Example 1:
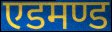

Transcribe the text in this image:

एडमण्ड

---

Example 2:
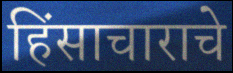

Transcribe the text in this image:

हिंसाचाराचे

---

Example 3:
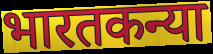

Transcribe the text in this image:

भारतकन्या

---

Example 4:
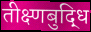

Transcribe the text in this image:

तीक्ष्णबुद्धि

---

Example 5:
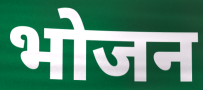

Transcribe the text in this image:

भोजन